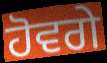
ਹੋਵਗੇ